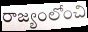
రాజ్యంలోంచి